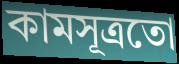
কামসূত্ৰতো